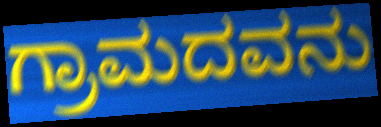
ಗ್ರಾಮದವನು